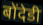
बोंदेडी